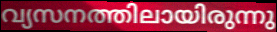
വ്യസനത്തിലായിരുന്നു